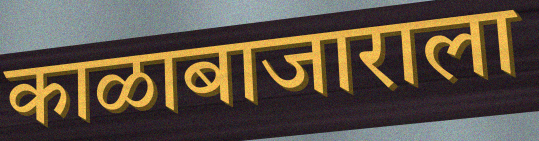
काळाबाजाराला